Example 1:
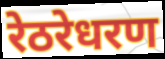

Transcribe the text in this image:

रेठरेधरण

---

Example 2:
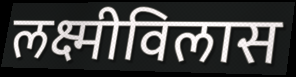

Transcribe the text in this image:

लक्ष्मीविलास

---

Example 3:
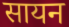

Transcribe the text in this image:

सायन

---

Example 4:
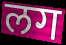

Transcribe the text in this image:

लग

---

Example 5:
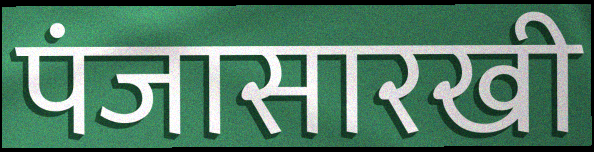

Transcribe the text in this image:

पंजासारखी